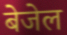
बेजेल